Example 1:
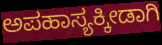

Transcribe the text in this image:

ಅಪಹಾಸ್ಯಕ್ಕೀಡಾಗಿ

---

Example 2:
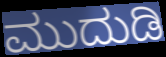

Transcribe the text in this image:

ಮುದುಡಿ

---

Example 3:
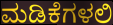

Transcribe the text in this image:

ಮಡಿಕೆಗಳಲಿ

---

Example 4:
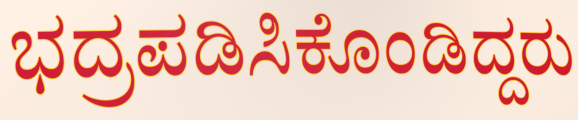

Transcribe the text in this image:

ಭದ್ರಪಡಿಸಿಕೊಂಡಿದ್ದರು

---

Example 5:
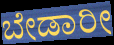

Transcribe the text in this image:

ಬೇಡಾರೀ